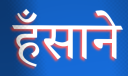
हँसाने